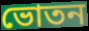
ভোতন